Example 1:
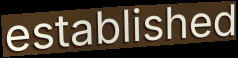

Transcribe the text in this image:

established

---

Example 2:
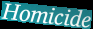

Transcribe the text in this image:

Homicide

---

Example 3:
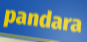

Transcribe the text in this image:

pandara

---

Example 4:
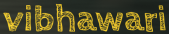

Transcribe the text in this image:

vibhawari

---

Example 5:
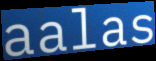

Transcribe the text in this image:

aalas